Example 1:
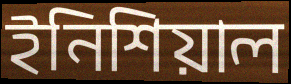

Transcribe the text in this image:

ইনিশিয়াল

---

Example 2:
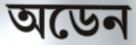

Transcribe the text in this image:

অডেন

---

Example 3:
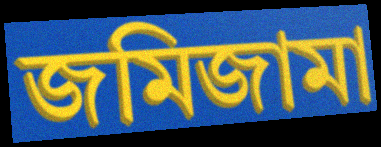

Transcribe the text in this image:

জমিজামা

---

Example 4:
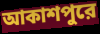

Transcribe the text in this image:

আকাশপুরে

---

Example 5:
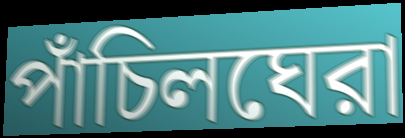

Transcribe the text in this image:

পাঁচিলঘেরা